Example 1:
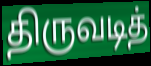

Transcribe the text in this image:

திருவடித்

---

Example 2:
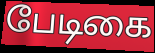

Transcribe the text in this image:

பேடிகை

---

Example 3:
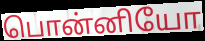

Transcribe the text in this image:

பொன்னியோ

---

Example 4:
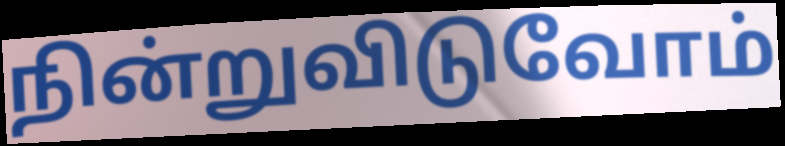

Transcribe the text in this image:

நின்றுவிடுவோம்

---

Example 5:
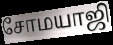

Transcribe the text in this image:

சோமயாஜி